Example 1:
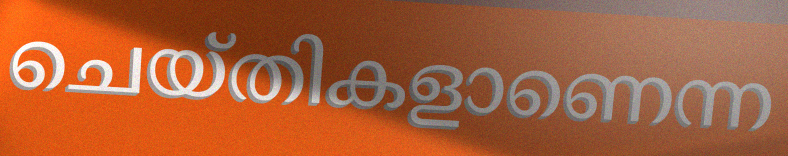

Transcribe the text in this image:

ചെയ്തികളാണെന്ന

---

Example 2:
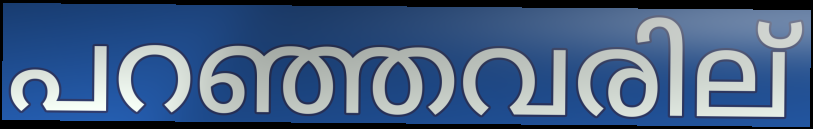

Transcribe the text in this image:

പറഞ്ഞവരില്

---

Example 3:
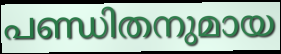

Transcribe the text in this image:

പണ്ഡിതനുമായ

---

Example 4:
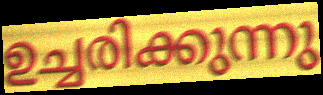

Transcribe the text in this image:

ഉച്ചരിക്കുന്നു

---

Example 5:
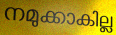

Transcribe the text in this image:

നമുക്കാകില്ല